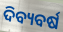
ଦିବ୍ୟବର୍ଷ